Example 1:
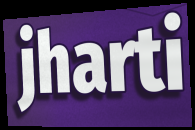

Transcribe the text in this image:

jharti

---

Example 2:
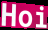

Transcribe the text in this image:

Hoi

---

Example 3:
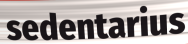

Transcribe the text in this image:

sedentarius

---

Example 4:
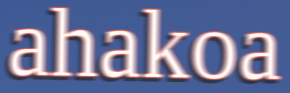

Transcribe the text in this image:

ahakoa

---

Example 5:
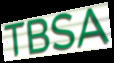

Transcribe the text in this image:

TBSA